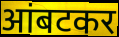
आंबटकर